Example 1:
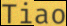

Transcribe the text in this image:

Tiao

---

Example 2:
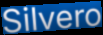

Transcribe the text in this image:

Silvero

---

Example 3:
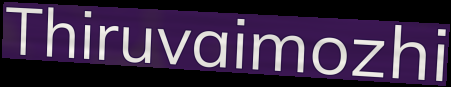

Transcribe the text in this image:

Thiruvaimozhi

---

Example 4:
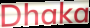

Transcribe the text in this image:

Dhaka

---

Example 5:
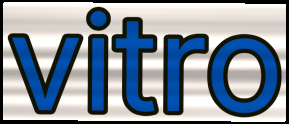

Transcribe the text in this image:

vitro